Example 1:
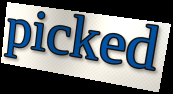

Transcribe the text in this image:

picked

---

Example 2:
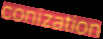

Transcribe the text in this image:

conization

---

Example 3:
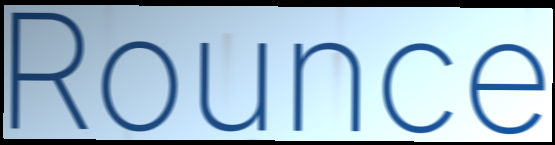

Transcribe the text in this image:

Rounce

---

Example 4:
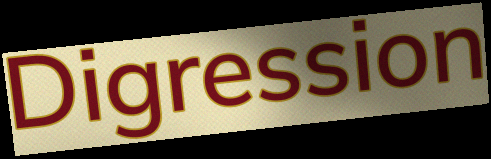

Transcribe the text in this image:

Digression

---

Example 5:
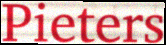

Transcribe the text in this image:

Pieters